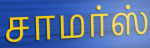
சாமர்ஸ்